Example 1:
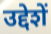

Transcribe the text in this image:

उद्देशें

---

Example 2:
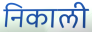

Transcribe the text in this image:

निकाली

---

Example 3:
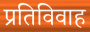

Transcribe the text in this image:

प्रतिविवाह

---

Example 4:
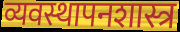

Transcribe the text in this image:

व्यवस्थापनशास्त्र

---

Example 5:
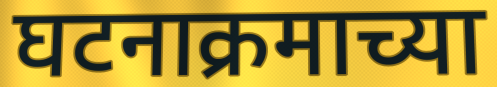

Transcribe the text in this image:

घटनाक्रमाच्या